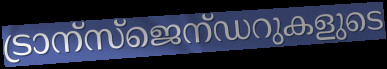
ട്രാന്സ്ജെന്ഡറുകളുടെ